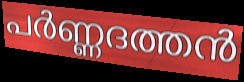
പർണ്ണദത്തൻ